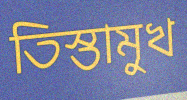
তিস্তামুখ